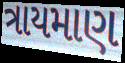
ત્રાયમાણ